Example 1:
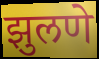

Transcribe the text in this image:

झुलणे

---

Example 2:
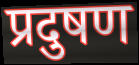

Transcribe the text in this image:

प्रदुषण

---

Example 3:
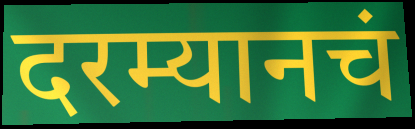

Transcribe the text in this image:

दरम्यानचं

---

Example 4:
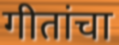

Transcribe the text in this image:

गीतांचा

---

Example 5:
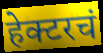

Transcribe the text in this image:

हेक्टरचं